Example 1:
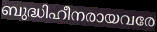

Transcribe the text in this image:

ബുദ്ധിഹീനരായവരേ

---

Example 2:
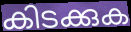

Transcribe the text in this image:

കിടക്കുക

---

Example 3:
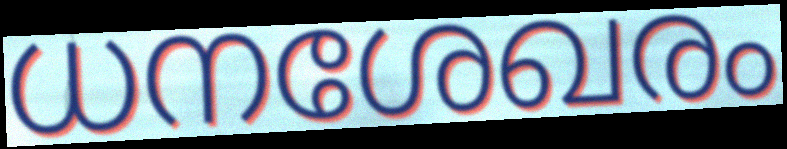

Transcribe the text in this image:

ധനശേഖരം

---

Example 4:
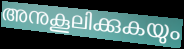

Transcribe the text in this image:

അനുകൂലിക്കുകയും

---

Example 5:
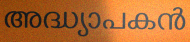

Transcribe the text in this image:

അദ്ധ്യാപകൻ